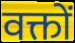
वक्तों